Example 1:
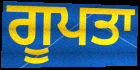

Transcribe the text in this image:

ਗੂਪਤਾ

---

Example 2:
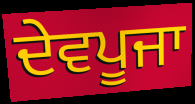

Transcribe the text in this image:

ਦੇਵਪੂਜਾ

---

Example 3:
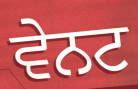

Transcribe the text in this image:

ਵੇਨਟ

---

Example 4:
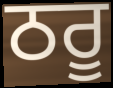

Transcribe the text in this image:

ਠਰੂ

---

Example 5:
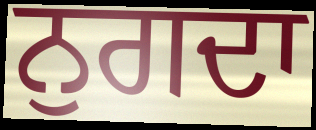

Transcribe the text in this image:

ਨੁਗਦਾ